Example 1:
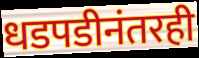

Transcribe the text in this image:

धडपडीनंतरही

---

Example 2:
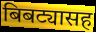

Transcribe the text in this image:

बिबट्यासह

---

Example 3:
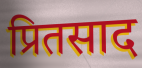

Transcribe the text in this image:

प्रितसाद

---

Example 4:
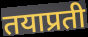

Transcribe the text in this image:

तयाप्रती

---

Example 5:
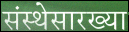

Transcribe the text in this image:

संस्थेसारख्या